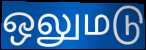
ஒலுமடு